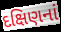
દક્ષિણનાં